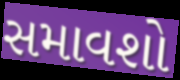
સમાવશો